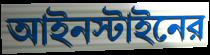
আইনস্টাইনের